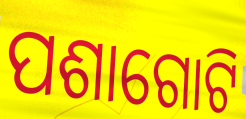
ପଶାଗୋଟି